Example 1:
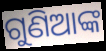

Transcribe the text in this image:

ଗୁଣିଆଙ୍କ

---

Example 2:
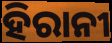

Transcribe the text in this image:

ହିରାନୀ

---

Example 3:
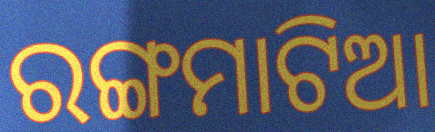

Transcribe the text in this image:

ରଙ୍ଗମାଟିଆ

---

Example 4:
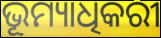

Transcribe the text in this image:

ଭୂମ୍ୟାଧିକରୀ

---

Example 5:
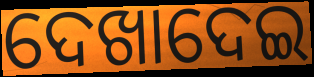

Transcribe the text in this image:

ଦେଖାଦେଇ